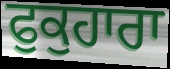
ਫੁਕੁਹਾਰਾ